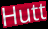
Hutt